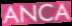
ANCA